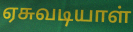
ஏசுவடியாள்